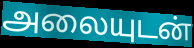
அலையுடன்